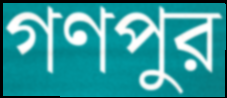
গণপুর